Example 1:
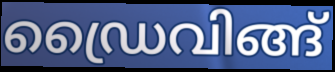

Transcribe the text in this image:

ഡ്രൈവിങ്ങ്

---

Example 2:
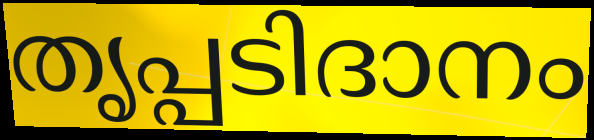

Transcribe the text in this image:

തൃപ്പടിദാനം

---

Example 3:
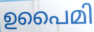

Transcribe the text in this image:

ഉപൈമി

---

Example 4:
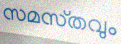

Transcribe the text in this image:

സമസ്‌തവും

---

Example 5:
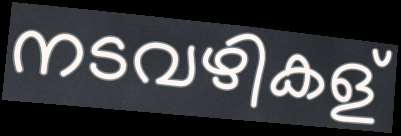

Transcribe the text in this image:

നടവഴികള്